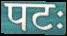
पटः